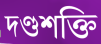
দণ্ডশক্তি